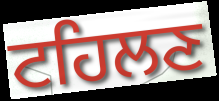
ਟਹਿਲਣ